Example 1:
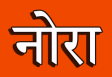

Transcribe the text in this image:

नोरा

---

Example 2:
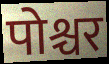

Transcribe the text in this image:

पोश्चर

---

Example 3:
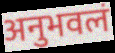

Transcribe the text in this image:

अनुभवलं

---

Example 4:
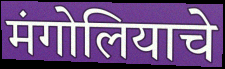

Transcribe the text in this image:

मंगोलियाचे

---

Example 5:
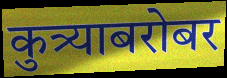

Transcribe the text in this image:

कुत्र्याबरोबर